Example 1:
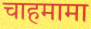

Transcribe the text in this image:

चाहमामा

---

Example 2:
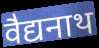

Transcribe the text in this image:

वैद्यनाथ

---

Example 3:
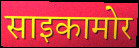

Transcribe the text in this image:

साइकामोर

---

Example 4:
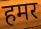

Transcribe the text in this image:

हमर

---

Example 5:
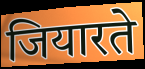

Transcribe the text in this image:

जियारते